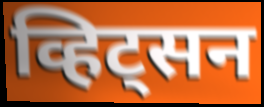
व्हिट्सन